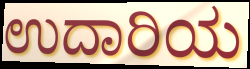
ಉದಾರಿಯ